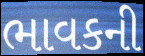
ભાવકની